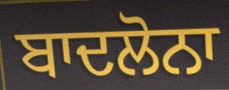
ਬਾਦਲੋਨਾ